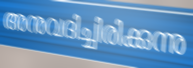
അനുവദിച്ചിരിക്കുന്നു